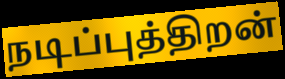
நடிப்புத்திறன்